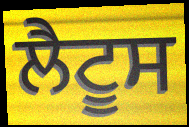
ਲੈਟੂਸ